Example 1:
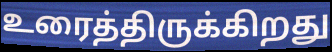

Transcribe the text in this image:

உரைத்திருக்கிறது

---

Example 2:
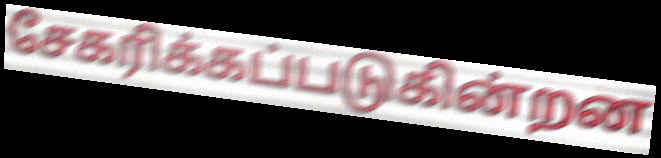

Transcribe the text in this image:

சேகரிக்கப்படுகின்றன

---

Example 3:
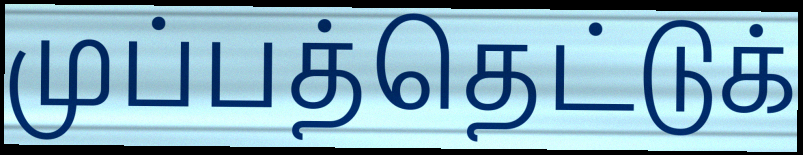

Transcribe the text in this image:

முப்பத்தெட்டுக்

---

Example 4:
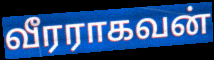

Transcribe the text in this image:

வீரராகவன்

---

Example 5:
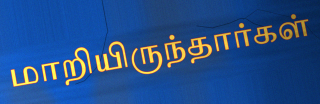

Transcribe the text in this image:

மாறியிருந்தார்கள்